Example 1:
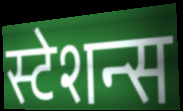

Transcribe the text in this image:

स्टेशन्स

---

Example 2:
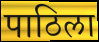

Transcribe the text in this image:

पाठिला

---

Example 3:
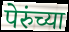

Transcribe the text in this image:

पेरुंच्या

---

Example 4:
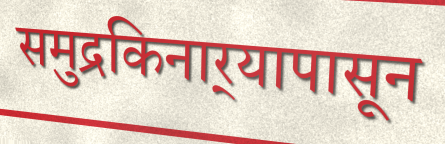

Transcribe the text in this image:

समुद्रकिनार्यापासून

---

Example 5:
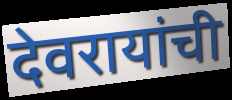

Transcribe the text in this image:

देवरायांची